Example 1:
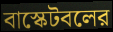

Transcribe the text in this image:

বাস্কেটবলের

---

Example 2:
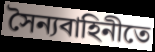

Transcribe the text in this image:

সৈন্যবাহিনীতে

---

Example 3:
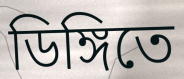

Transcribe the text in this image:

ডিঙ্গিতে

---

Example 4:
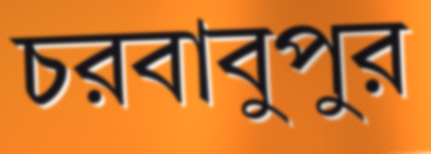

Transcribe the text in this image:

চরবাবুপুর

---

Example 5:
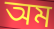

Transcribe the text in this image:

অম